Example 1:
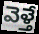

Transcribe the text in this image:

వెళ్తే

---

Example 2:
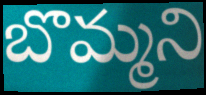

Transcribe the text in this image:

బొమ్మని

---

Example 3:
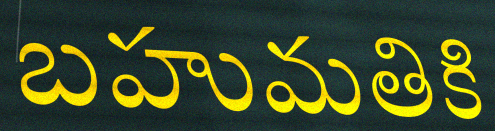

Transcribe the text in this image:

బహుమతికి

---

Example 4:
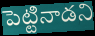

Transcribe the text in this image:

పెట్టినాడని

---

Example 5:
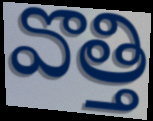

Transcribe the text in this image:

వొత్తి